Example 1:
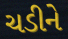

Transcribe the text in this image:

ચડીને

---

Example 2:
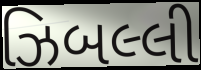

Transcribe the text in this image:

ઝિબલ્લી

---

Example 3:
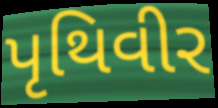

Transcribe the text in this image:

પૃથિવીર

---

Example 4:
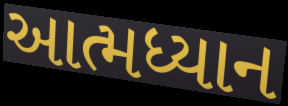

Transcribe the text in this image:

આત્મધ્યાન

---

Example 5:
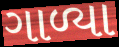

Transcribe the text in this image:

ગાળ્યા